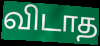
விடாத